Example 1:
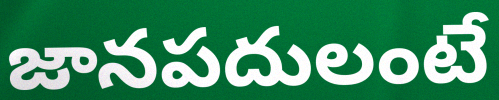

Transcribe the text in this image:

జానపదులంటే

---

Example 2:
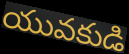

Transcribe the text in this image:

యువకుడి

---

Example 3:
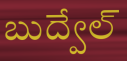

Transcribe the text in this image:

బుద్వేల్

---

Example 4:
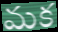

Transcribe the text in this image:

మక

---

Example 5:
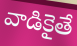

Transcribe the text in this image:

వాడికైతే